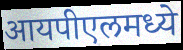
आयपीएलमध्ये